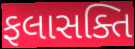
ફલાસક્તિ